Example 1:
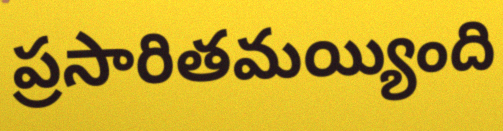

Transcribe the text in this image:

ప్రసారితమయ్యింది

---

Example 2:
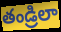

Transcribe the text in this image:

తండ్రిలా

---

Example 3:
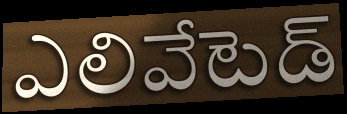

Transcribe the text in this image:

ఎలివేటెడ్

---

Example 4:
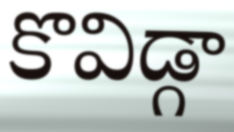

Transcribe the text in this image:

కొవిడ్గా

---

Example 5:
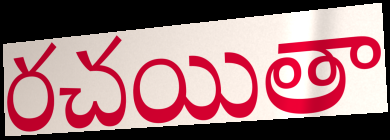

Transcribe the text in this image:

రచయితా